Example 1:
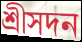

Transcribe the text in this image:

শ্রীসদন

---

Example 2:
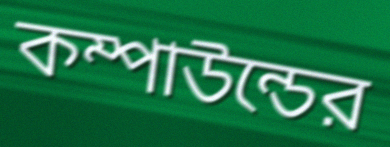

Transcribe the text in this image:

কম্পাউন্ডের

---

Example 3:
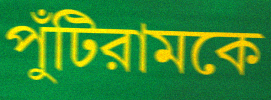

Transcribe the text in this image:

পুঁটিরামকে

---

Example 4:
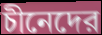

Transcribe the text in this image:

চীনেদের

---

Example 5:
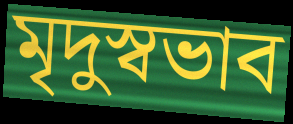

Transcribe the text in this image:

মৃদুস্বভাব